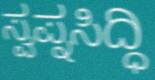
ಸ್ವಪ್ನಸಿದ್ಧಿ